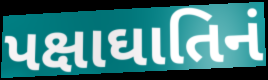
પક્ષાઘાતિનં